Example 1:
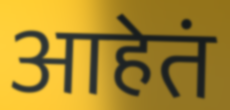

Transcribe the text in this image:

आहेतं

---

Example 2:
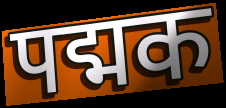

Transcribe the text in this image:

पद्मक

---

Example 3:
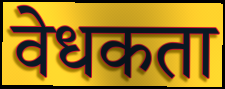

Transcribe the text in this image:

वेधकता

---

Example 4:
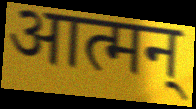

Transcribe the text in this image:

आत्मन्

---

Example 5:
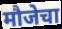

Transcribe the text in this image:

मौजेचा